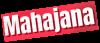
Mahajana